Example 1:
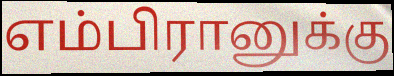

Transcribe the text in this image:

எம்பிரானுக்கு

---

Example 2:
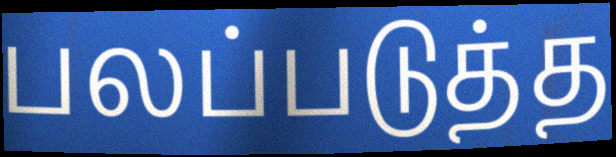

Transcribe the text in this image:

பலப்படுத்த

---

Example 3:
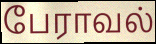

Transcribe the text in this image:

பேராவல்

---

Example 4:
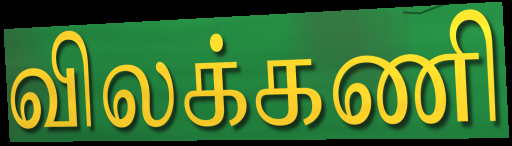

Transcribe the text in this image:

விலக்கணி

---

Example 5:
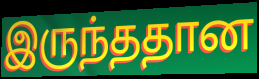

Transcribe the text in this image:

இருந்ததான